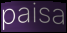
paisa